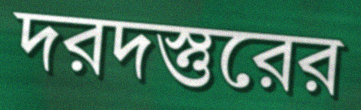
দরদস্তুরের